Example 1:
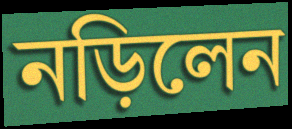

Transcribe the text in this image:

নড়িলেন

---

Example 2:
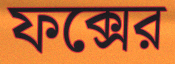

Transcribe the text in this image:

ফক্সের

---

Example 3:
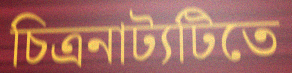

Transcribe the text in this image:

চিত্রনাট্যটিতে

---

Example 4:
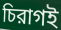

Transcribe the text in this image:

চিরাগই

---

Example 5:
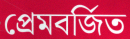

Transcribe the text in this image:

প্রেমবর্জিত